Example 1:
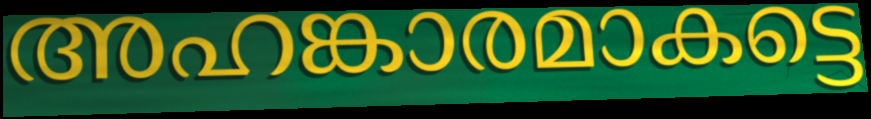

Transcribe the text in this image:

അഹങ്കാരമാകട്ടെ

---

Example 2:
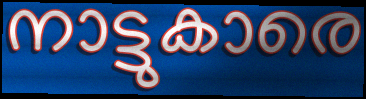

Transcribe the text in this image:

നാട്ടുകാരെ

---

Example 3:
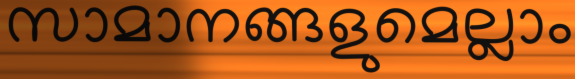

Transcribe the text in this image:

സാമാനങ്ങളുമെല്ലാം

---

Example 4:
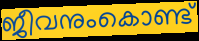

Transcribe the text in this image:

ജീവനുംകൊണ്ട്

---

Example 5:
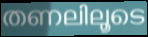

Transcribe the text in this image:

തണലിലൂടെ